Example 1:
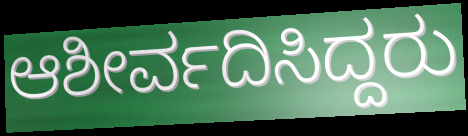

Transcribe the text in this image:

ಆಶೀರ್ವದಿಸಿದ್ದರು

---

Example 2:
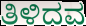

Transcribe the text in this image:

ತಿಳಿದವ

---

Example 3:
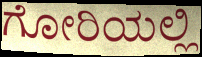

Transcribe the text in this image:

ಗೋರಿಯಲ್ಲಿ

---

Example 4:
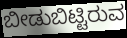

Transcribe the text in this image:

ಬೀಡುಬಿಟ್ಟಿರುವ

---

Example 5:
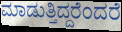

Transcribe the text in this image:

ಮಾಡುತ್ತಿದ್ದರೆಂದರೆ